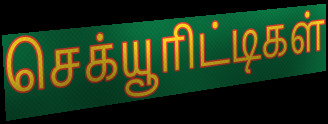
செக்யூரிட்டிகள்